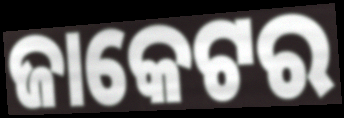
ଜାକେଟର